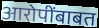
आरोपींबाबत